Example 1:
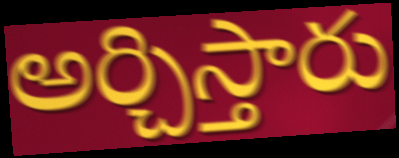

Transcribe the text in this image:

అర్చిస్తారు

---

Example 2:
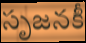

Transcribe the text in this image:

సృజనకీ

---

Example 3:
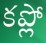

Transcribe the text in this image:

కప్లో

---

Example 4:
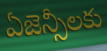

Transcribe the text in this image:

ఏజెన్సీలకు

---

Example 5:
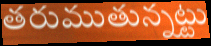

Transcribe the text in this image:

తరుముతున్నట్టు